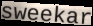
sweekar